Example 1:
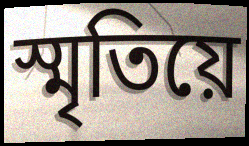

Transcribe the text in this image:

স্মৃতিয়ে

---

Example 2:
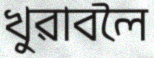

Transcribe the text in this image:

খুৱাবলৈ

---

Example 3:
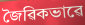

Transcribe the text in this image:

জৈৱিকভাৱে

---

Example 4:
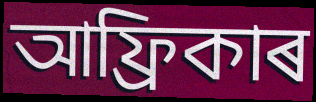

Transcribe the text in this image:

আফ্ৰিকাৰ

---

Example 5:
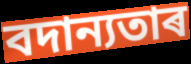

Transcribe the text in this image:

বদান্যতাৰ